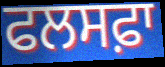
ਫਲਸਫ਼ਾ